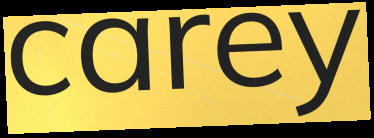
carey